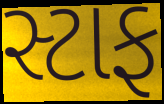
સ્ટાફ